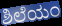
ಶಿಲೆಯಂ